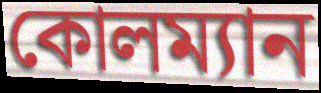
কোলম্যান